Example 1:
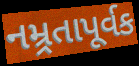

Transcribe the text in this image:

નમ્ર્રતાપૂર્વક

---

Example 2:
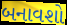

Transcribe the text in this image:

બનાવશો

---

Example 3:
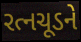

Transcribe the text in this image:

રત્નચૂડને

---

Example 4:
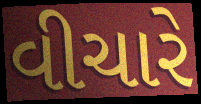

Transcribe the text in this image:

વીચારે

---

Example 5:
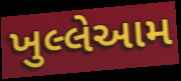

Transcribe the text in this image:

ખુલ્લેઆમ